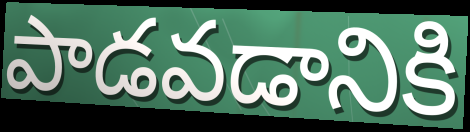
పాడవడానికి